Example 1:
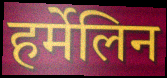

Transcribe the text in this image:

हर्मेलिन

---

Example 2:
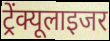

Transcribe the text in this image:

ट्रेंक्यूलाइजर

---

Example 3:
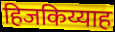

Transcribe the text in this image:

हिजकिय्याह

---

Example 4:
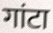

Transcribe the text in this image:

गांटा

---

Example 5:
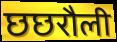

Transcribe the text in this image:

छछरौली